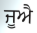
ਜੂਐ